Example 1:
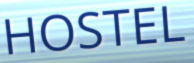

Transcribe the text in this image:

HOSTEL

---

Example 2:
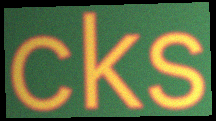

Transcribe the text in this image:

cks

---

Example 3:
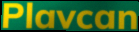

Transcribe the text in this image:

Plavcan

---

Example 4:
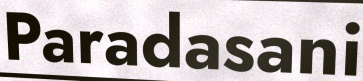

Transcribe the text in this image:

Paradasani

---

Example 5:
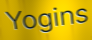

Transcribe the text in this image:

Yogins